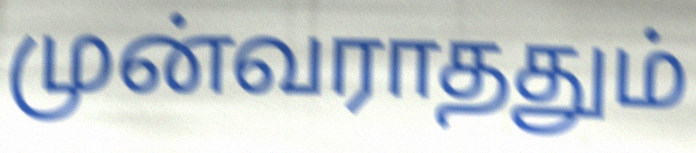
முன்வராததும்